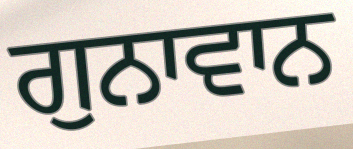
ਗੁਨਾਵਾਨ